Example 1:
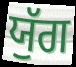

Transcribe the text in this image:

ਯੁੱਗ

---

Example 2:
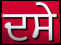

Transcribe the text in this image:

ਦਸੇ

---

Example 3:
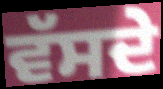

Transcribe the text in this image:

ਵੱਸਦੇ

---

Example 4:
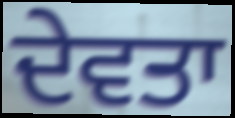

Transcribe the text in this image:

ਦੇਵਤਾ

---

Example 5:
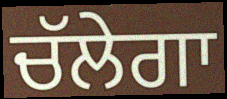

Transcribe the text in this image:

ਚੱਲੇਗਾ